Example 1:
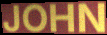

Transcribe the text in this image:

JOHN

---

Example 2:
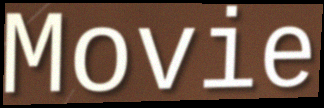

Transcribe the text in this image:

Movie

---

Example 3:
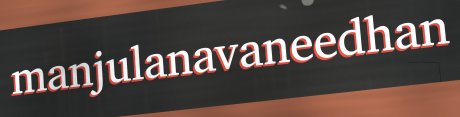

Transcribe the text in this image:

manjulanavaneedhan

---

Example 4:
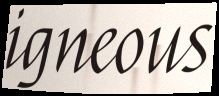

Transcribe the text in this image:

igneous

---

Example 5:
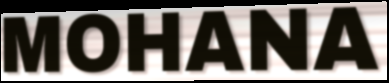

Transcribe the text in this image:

MOHANA